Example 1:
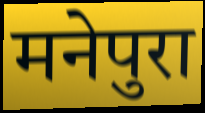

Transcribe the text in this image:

मनेपुरा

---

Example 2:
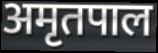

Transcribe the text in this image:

अमृतपाल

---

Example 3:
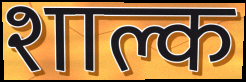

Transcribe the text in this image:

शाल्क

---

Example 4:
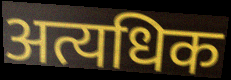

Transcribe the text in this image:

अत्यधिक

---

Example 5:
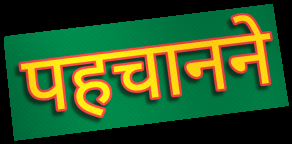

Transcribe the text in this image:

पहचानने